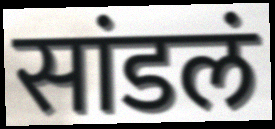
सांडलं